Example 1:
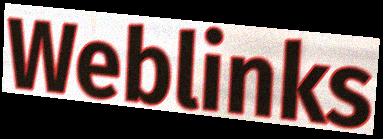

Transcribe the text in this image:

Weblinks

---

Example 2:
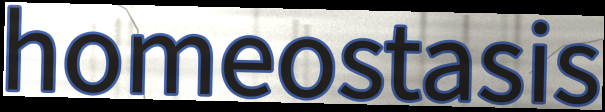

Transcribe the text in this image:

homeostasis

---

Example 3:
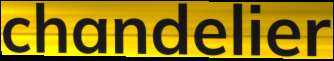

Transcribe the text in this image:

chandelier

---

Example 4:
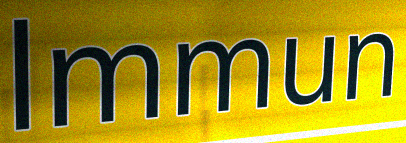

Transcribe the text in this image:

Immun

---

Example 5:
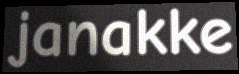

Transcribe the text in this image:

janakke